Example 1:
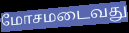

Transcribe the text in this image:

மோசமடைவது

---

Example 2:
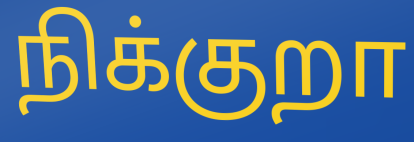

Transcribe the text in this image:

நிக்குறா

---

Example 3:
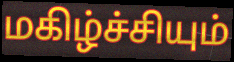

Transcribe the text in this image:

மகிழ்ச்சியும்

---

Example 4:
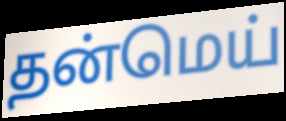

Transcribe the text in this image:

தன்மெய்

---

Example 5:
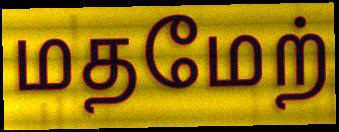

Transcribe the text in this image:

மதமேற்